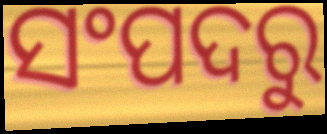
ସଂପଦରୁ